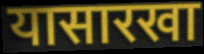
यासारखा